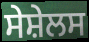
ਸੇਸ਼ੇਲਸ